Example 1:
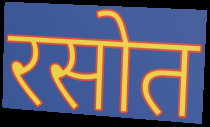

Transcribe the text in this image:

रसोत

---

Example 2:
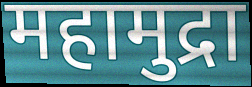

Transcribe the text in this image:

महामुद्रा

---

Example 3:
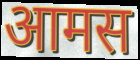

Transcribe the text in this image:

आमस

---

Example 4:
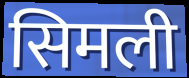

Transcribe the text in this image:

सिमली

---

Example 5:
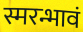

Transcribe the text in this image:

स्मरन्भावं